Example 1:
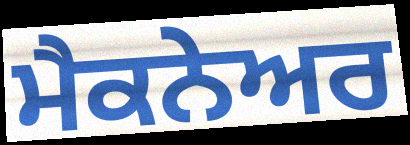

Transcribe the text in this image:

ਮੈਕਨੇਅਰ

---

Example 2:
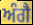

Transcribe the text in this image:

ਅੰਗੈ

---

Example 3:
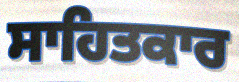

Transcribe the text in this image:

ਸਾਹਿਤਕਾਰ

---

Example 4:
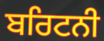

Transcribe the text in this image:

ਬਰਿਟਨੀ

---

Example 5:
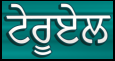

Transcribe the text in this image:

ਟੇਰੂਏਲ